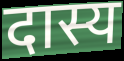
दास्य